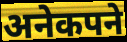
अनेकपने